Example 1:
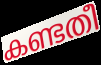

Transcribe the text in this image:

കണ്ടതീ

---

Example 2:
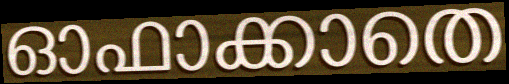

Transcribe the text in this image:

ഓഫാക്കാതെ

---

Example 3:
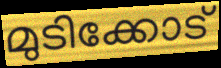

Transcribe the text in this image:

മുടിക്കോട്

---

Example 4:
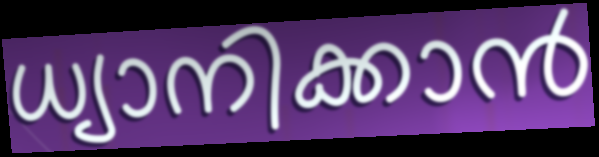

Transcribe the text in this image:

ധ്യാനിക്കാൻ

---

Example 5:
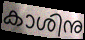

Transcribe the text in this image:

കാശിനു